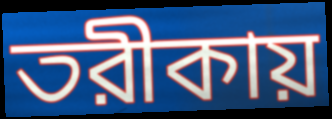
তরীকায়